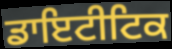
ਡਾਇਟੀਟਿਕ